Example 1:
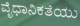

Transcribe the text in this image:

ವೈಧಾನಿಕತೆಯು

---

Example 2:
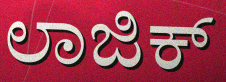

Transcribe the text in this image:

ಲಾಜಿಕ್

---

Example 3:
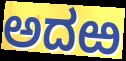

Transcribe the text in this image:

ಅದಱ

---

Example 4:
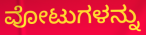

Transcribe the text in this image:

ವೋಟುಗಳನ್ನು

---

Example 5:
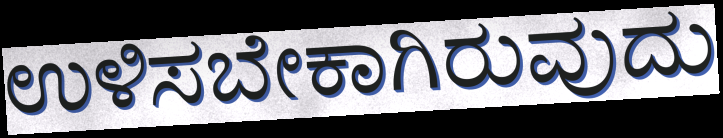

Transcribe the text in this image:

ಉಳಿಸಬೇಕಾಗಿರುವುದು